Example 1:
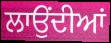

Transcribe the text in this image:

ਲਾਉਂਦੀਆਂ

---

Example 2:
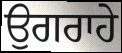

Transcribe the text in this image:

ਉਗਰਾਹੇ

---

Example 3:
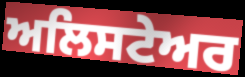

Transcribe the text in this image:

ਅਲਿਸਟੇਅਰ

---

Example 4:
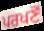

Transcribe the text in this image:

ਪਰਖਣੋਂ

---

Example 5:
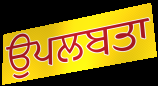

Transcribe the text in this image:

ਉਪਲਬਤਾ